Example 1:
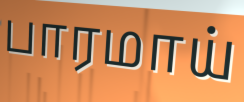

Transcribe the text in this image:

பாரமாய்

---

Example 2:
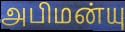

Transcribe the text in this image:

அபிமன்யு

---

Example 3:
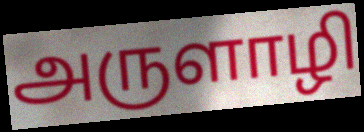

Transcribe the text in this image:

அருளாழி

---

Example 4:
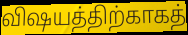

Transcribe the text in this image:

விஷயத்திற்காகத்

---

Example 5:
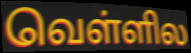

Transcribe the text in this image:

வெள்ளில